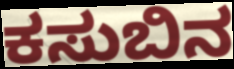
ಕಸುಬಿನ